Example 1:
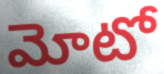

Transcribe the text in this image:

మోటో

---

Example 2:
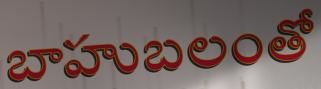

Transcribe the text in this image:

బాహుబలంతో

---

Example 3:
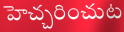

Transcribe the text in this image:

హెచ్చరించుట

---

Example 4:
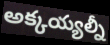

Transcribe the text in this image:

అక్కయ్యల్నీ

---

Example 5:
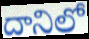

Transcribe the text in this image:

దానిలో